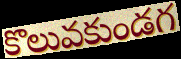
కొలువకుండగ